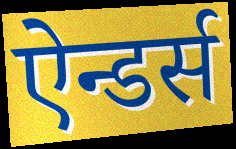
ऐन्डर्स